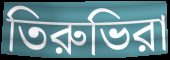
তিরুভিরা